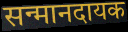
सन्मानदायक